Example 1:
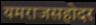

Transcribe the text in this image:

यमराजसहोदर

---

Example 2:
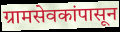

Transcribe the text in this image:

ग्रामसेवकांपासून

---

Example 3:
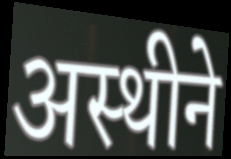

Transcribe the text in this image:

अस्थीने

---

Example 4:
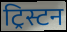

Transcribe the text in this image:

ट्रिस्टन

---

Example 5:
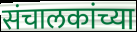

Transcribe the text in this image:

संचालकांच्या